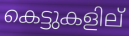
കെട്ടുകളില്